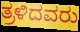
ತ್ರಳಿದವರು